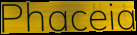
Phaceia